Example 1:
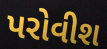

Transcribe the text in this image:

પરોવીશ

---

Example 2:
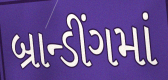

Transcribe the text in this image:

બ્રાન્ડીંગમાં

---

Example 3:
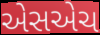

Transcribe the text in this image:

એસએચ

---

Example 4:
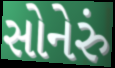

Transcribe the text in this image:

સોનેરું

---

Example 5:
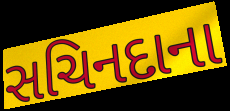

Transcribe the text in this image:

સચિનદાના